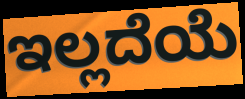
ಇಲ್ಲದೆಯೆ